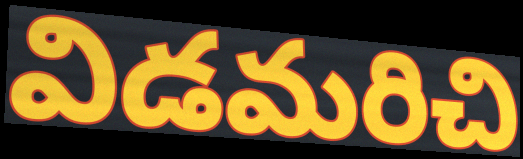
విడమరిచి